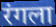
रंगला